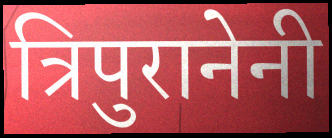
त्रिपुरानेनी